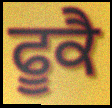
ਫੂਕੈ